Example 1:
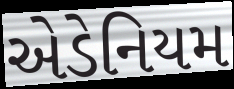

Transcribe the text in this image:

એડેનિયમ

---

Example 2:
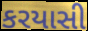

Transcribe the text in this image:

કરયાસી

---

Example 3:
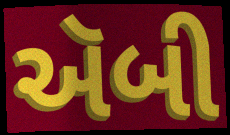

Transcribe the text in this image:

ઍબી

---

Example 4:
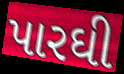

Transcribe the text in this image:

પારઘી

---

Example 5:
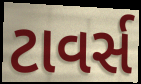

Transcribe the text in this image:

ટાવર્સ